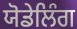
ਯੋਡੇਲਿੰਗ